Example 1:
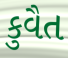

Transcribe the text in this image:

કુવૈત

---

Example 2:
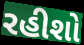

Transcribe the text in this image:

રહીશો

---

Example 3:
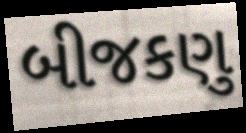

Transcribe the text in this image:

બીજકણુ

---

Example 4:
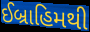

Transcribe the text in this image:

ઈબ્રાહિમથી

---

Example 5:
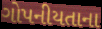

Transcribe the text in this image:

ગોપનીયતાના